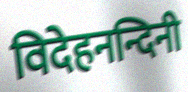
विदेहनन्दिनी